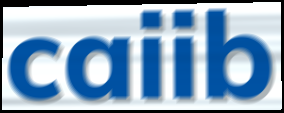
caiib